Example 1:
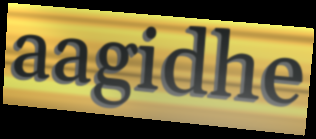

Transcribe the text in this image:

aagidhe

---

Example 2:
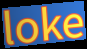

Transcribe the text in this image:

loke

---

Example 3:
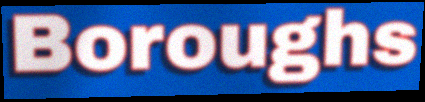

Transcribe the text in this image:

Boroughs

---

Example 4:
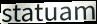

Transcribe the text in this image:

statuam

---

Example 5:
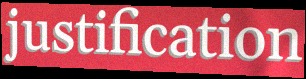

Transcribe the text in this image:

justification